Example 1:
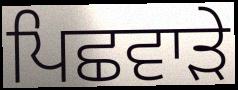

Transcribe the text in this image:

ਪਿਛਵਾੜੇ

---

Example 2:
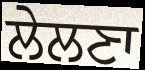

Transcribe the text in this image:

ਲੇਲਣਾ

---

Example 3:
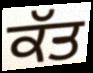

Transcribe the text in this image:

ਕੱਤ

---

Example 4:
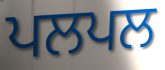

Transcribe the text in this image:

ਪਲਪਲ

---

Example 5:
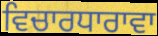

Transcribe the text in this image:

ਵਿਚਾਰਧਾਰਾਵਾ